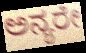
ಅನ್ಯರೇ